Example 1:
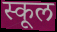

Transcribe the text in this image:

स्कूल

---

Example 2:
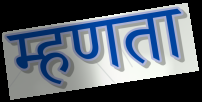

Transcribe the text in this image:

म्हणता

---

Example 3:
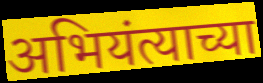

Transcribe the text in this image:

अभियंत्याच्या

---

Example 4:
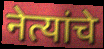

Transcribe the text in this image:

नेत्यांचे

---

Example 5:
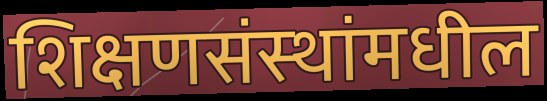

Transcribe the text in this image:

शिक्षणसंस्थांमधील